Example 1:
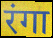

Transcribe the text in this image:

रंगा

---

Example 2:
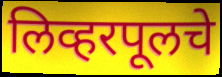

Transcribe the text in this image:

लिव्हरपूलचे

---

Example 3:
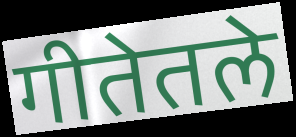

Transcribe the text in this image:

गीतेतले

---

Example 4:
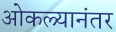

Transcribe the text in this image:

ओकल्यानंतर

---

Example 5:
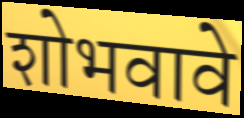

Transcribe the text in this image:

शोभवावे